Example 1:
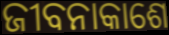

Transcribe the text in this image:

ଜୀବନାକାଶେ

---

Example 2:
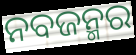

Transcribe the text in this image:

ନବଜନ୍ମର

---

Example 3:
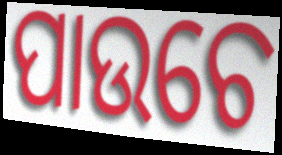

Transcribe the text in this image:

ପାଉଚେ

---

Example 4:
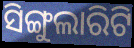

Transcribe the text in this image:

ସିଙ୍ଗୁଲାରିଟି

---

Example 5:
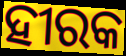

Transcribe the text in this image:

ହୀରକ